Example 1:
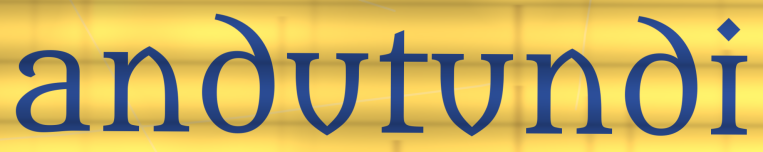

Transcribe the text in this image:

andutundi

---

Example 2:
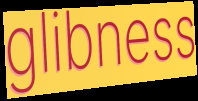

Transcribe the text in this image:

glibness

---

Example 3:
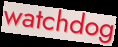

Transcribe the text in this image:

watchdog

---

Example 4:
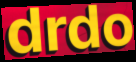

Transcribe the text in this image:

drdo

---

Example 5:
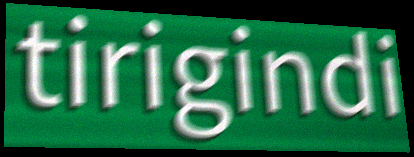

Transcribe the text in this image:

tirigindi